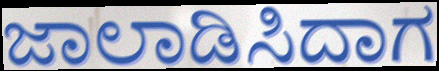
ಜಾಲಾಡಿಸಿದಾಗ